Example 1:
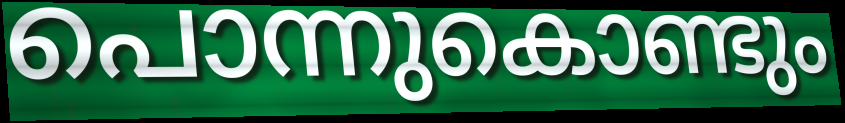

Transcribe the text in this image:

പൊന്നുകൊണ്ടും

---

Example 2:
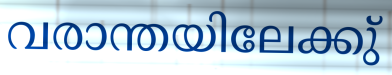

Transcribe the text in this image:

വരാന്തയിലേക്കു്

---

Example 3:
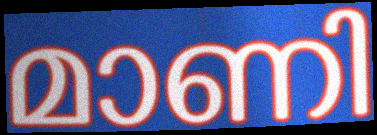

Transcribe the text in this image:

മാണി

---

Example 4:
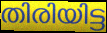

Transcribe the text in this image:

തിരിയിട്ട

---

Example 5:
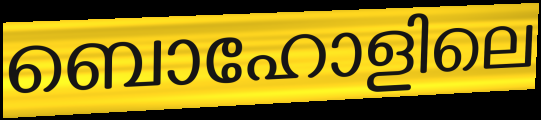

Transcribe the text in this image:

ബൊഹോളിലെ